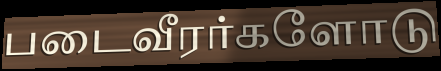
படைவீரர்களோடு